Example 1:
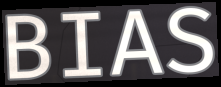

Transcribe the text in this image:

BIAS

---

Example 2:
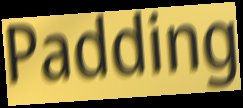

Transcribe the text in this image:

Padding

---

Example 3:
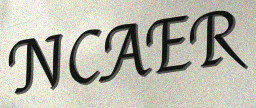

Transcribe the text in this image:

NCAER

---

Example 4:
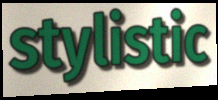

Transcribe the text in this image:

stylistic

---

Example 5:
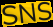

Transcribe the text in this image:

SNS